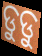
ଡୁଡୁ